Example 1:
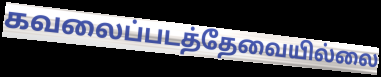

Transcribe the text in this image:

கவலைப்படத்தேவையில்லை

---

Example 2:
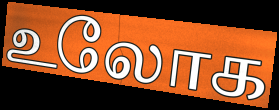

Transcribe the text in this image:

உலோக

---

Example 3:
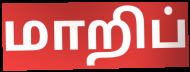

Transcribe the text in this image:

மாறிப்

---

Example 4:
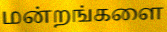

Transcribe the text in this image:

மன்றங்களை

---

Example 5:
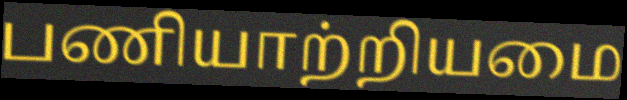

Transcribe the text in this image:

பணியாற்றியமை